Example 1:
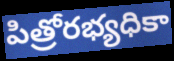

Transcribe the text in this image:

పిత్రోరభ్యధికా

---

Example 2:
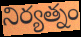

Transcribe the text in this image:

నిర్యత్నం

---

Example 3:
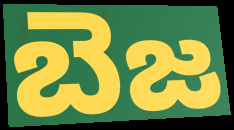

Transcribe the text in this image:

బెజ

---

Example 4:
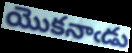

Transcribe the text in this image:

యొకనాఁడు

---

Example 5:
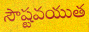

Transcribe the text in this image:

సౌష్టవయుత